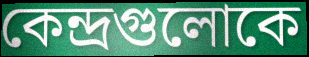
কেন্দ্রগুলোকে